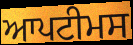
ਆਪਟੀਮਸ